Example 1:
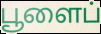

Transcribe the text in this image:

பூளைப்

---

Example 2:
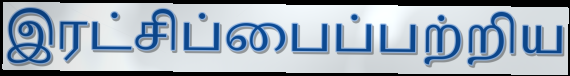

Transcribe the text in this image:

இரட்சிப்பைப்பற்றிய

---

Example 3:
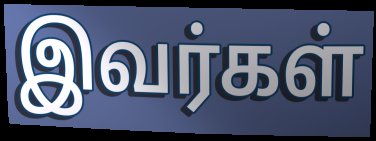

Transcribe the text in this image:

இவர்கள்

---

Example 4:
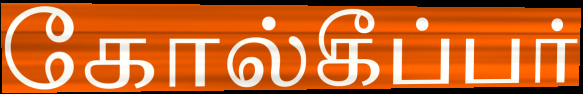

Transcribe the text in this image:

கோல்கீப்பர்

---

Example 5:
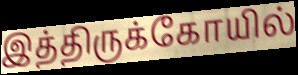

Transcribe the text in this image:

இத்திருக்கோயில்